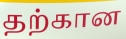
தற்கான